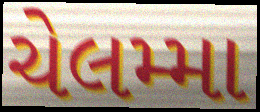
ચેલમ્મા